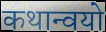
कथान्वयो